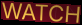
WATCH